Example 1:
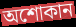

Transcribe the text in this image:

অশোকান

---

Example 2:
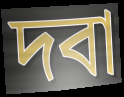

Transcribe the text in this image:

দবা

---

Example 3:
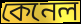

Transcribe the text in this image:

কেনেল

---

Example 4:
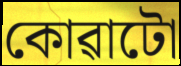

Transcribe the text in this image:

কোৱাটো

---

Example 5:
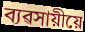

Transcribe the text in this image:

ব্যৱসায়ীয়ে